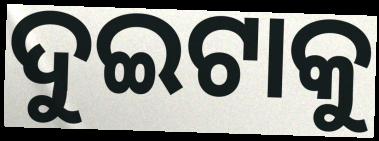
ଦୁଇଟାକୁ